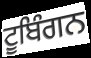
ਟੂਬਿੰਗਨ